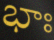
భాః